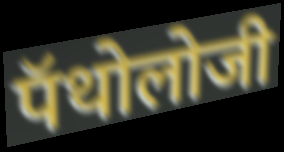
पॅथोलोजी